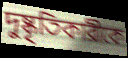
দুষ্কৃতিকারীকে